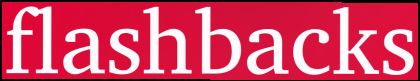
flashbacks